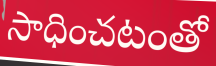
సాధించటంతో